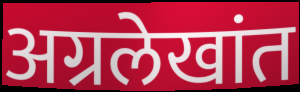
अग्रलेखांत